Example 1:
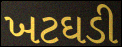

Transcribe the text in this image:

ખટઘડી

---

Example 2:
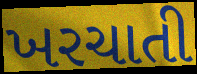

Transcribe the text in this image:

ખરચાતી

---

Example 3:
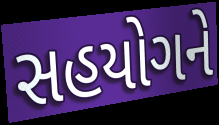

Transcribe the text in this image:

સહયોગને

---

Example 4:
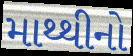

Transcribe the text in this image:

માથ્થીનો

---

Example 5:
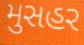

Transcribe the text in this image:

મુસહર